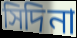
সিদিনা